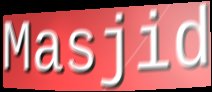
Masjid